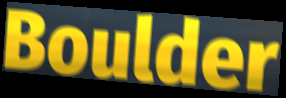
Boulder